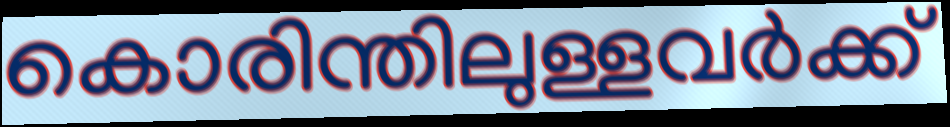
കൊരിന്തിലുള്ളവർക്ക്